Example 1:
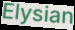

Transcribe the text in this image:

Elysian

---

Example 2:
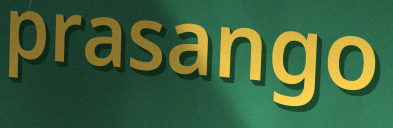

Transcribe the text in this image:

prasango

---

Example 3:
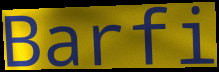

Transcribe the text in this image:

Barfi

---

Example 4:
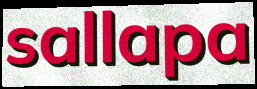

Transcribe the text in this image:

sallapa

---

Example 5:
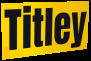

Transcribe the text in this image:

Titley